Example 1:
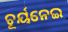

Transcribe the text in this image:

ଚୂର୍ୟନେଇ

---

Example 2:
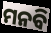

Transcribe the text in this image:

ମନବି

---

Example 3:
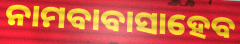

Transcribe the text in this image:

ନାମବାବାସାହେବ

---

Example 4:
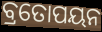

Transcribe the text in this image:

ବ୍ରତୋପୟନ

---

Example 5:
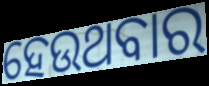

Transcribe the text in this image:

ହେଉଥବାର